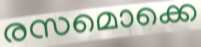
രസമൊക്കെ